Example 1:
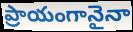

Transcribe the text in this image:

ప్రాయంగానైనా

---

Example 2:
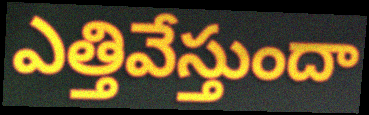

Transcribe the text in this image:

ఎత్తివేస్తుందా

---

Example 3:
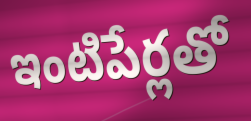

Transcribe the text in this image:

ఇంటిపేర్లతో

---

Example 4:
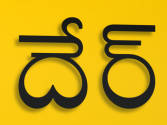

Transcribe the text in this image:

దేర్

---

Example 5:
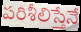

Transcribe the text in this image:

పరిశీలిస్తేనే